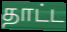
தாட்ட